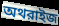
অথরাইজ